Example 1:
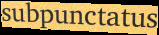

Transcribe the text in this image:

subpunctatus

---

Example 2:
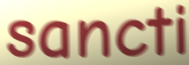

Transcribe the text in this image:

sancti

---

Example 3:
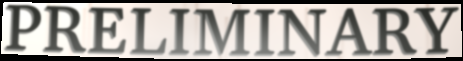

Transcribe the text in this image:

PRELIMINARY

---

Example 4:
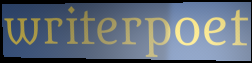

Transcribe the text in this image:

writerpoet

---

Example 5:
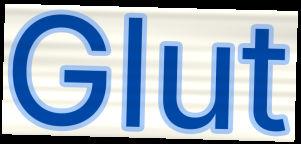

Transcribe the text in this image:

Glut